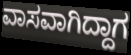
ವಾಸವಾಗಿದ್ದಾಗ